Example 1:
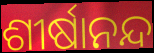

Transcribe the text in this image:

ଶୀର୍ଷାନନ୍ଦ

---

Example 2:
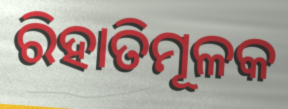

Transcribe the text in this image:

ରିହାତିମୂଳକ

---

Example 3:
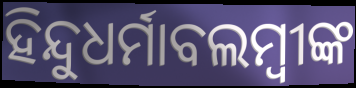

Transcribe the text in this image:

ହିନ୍ଦୁଧର୍ମାବଲମ୍ବୀଙ୍କ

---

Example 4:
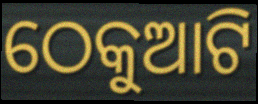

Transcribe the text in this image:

ଠେକୁଆଟି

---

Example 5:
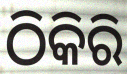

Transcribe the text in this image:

ଠିକିରି